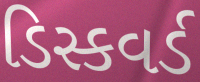
ડિસ્કવર્ડ